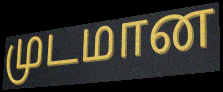
முடமான